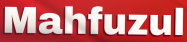
Mahfuzul